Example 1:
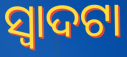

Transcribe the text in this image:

ସ୍ଵାଦଟା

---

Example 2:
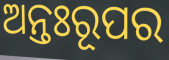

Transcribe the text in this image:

ଅନ୍ତଃରୂପର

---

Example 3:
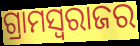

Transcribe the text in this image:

ଗ୍ରାମସ୍ୱରାଜର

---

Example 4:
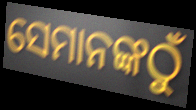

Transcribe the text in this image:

ସେମାନଙ୍କଠୁଁ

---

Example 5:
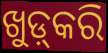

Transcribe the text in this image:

ଖୁଡ଼୍‍କରି